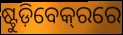
ଷ୍ଟୁଡ଼ିବେକ୍‌ରରେ